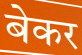
बेकर